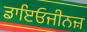
ਡਾਇਓਜੀਨਜ਼